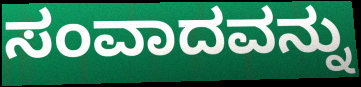
ಸಂವಾದವನ್ನು